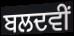
ਬਲਦਵੀਂ